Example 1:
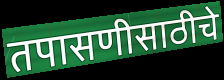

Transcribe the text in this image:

तपासणीसाठीचे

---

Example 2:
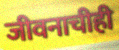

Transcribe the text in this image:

जीवनाचीही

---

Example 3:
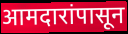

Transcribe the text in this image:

आमदारांपासून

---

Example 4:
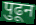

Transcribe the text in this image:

पुढून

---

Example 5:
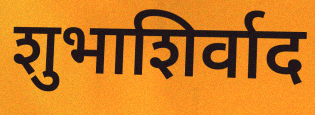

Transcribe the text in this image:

शुभाशिर्वाद